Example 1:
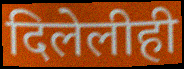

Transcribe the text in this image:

दिलेलीही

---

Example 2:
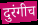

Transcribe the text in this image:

दुरंगीच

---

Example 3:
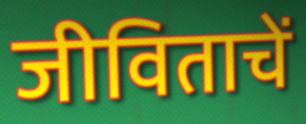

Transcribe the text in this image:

जीविताचें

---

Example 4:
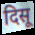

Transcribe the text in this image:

दिसू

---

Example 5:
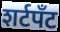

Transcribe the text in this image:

शर्टपॅंट